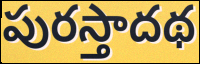
పురస్తాదథ